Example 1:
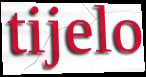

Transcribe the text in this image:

tijelo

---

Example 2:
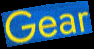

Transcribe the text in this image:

Gear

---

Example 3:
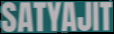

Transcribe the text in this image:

SATYAJIT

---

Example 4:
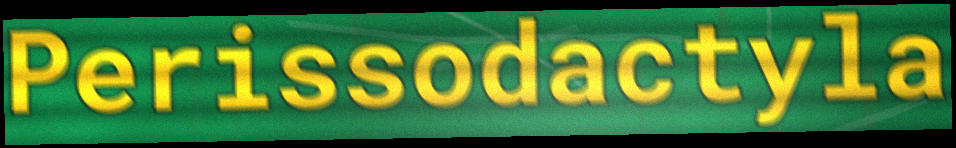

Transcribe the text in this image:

Perissodactyla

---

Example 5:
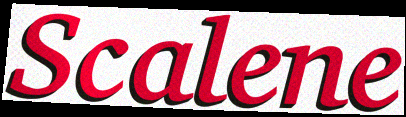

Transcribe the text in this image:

Scalene